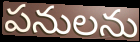
పనులను